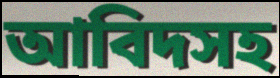
আবিদসহ